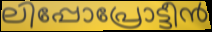
ലിപ്പോപ്രോട്ടീൻ